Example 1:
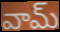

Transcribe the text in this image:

వామ్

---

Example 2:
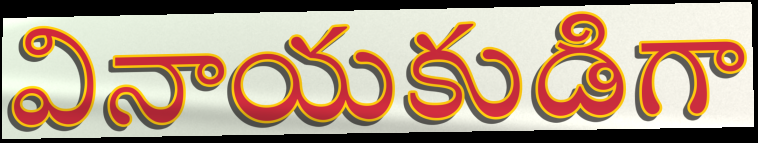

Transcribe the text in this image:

వినాయకుడిగా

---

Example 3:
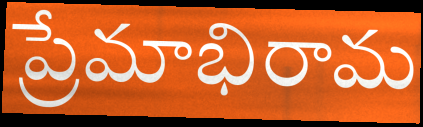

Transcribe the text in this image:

ప్రేమాభిరామ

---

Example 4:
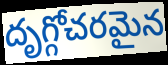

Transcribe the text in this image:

దృగ్గోచరమైన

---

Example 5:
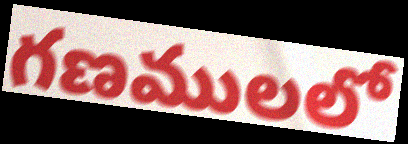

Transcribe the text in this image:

గణములలో